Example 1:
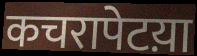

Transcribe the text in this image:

कचरापेटय़ा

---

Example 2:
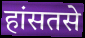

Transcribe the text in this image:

हांसतसे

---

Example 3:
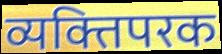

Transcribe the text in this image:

व्यक्तिपरक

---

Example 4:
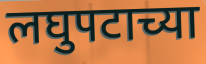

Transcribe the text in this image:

लघुपटाच्या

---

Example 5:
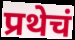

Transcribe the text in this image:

प्रथेचं